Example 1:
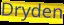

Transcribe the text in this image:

Dryden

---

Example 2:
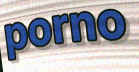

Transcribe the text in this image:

porno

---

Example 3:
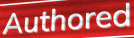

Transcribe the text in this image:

Authored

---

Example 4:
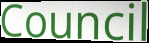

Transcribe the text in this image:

Council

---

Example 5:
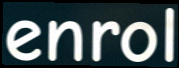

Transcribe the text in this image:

enrol